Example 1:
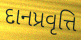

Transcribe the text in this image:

દાનપ્રવૃત્તિ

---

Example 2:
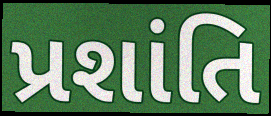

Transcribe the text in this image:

પ્રશાંતિ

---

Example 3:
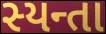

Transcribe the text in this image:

સ્યન્તા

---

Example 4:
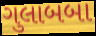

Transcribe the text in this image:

ગુલાબબા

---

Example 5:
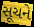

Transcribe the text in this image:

સૂચને